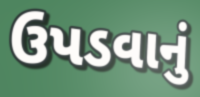
ઉપડવાનું